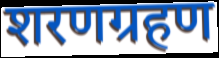
शरणग्रहण